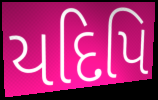
યદિપિ